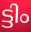
ട്ടിം